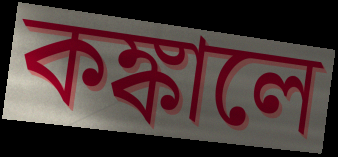
কঙ্কালে